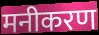
मनीकरण